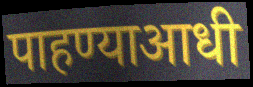
पाहण्याआधी